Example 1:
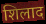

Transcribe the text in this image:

शिलाद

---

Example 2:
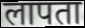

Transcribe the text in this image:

लापता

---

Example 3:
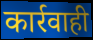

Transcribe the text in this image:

कार्रवाही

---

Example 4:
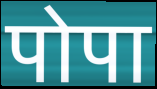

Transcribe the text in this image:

पोपा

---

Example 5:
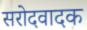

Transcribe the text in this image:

सरोदवादक